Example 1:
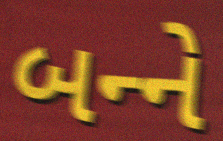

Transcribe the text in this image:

બન્‍ને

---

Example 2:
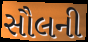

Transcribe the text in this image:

સૌલની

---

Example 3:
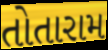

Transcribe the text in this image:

તોતારામ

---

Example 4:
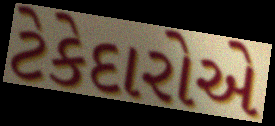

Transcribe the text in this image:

ટેકેદારોએ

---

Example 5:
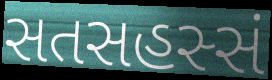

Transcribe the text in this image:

સતસહસ્સં